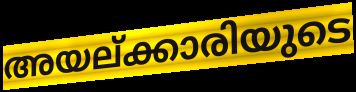
അയല്ക്കാരിയുടെ